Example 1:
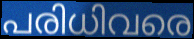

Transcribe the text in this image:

പരിധിവരെ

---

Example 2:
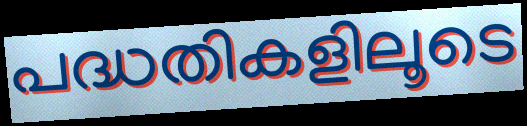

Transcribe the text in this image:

പദ്ധതികളിലൂടെ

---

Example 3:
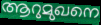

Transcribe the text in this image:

ആറുമുഖനെ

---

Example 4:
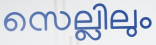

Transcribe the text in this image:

സെല്ലിലും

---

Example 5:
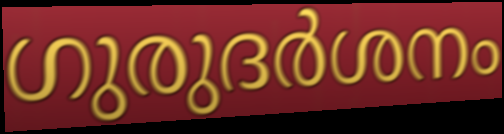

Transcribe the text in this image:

ഗുരുദർശനം